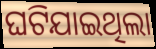
ଘଟିଯାଇଥିଲା